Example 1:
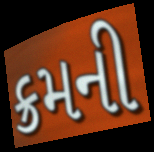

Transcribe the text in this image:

ક્રમની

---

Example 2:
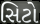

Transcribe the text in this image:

સિટો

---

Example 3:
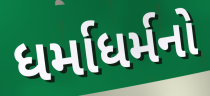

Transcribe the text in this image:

ધર્માધર્મનો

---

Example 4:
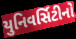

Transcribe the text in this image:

યુનિવર્સિટીનો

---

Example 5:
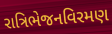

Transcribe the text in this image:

રાત્રિભેજનવિરમણ